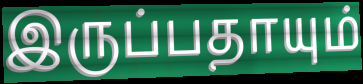
இருப்பதாயும்